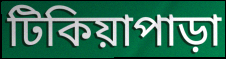
টিকিয়াপাড়া